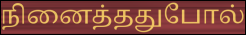
நினைத்ததுபோல்